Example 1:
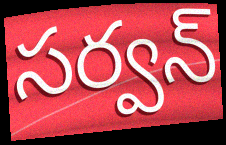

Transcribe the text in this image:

సర్వన్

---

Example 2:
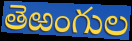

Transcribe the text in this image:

తెఱంగుల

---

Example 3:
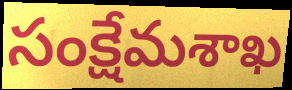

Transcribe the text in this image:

సంక్షేమశాఖ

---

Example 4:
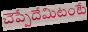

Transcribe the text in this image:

చెప్పేదేమిటంటే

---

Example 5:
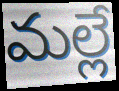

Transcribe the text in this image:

మల్లే